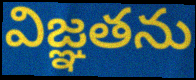
విజ్ఞతను